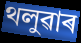
থলুৱাৰ